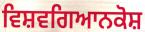
ਵਿਸ਼ਵਗਿਆਨਕੋਸ਼